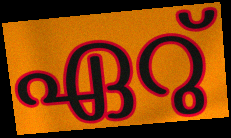
ഏറു്